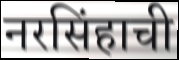
नरसिंहाची